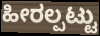
ಹೀರಲ್ಪಟ್ಟು